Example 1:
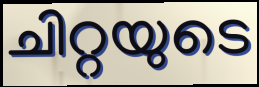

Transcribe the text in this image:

ചിറ്റയുടെ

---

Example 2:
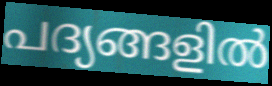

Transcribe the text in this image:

പദ്യങ്ങളിൽ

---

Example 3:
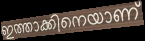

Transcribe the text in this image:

ഇത്താക്കിനെയാണ്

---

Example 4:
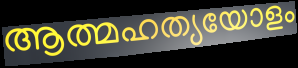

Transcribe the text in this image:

ആത്മഹത്യയോളം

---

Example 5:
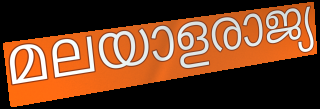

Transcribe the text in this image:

മലയാളരാജ്യ